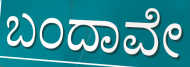
ಬಂದಾವೇ